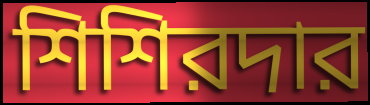
শিশিরদার